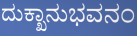
ದುಕ್ಖಾನುಭವನಂ